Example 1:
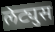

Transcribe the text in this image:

लेट्युस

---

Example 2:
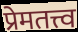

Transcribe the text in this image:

प्रेमतत्त्व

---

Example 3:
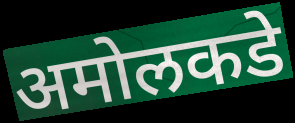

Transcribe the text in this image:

अमोलकडे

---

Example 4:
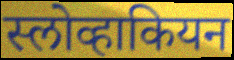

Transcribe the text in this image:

स्लोव्हाकियन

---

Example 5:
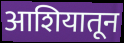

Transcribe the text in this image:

आशियातून